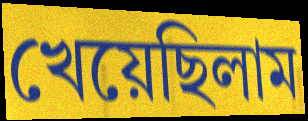
খেয়েছিলাম